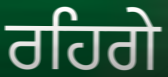
ਰਹਿਗੇ